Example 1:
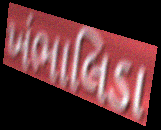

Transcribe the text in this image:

ખંભાલિડા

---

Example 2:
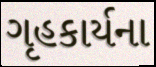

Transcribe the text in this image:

ગૃહકાર્યના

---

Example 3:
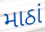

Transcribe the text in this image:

માઠાં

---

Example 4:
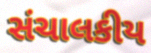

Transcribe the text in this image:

સંચાલકીય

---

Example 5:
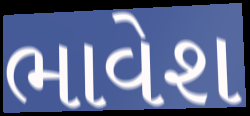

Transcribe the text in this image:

ભાવેશ